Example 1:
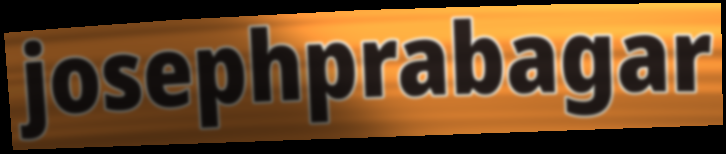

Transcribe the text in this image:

josephprabagar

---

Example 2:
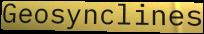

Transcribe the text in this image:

Geosynclines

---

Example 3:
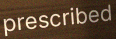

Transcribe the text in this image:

prescribed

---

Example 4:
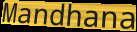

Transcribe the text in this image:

Mandhana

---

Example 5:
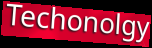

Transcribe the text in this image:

Techonolgy